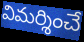
విమర్శించే